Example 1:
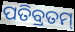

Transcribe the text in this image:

ପତିବ୍ରତମ୍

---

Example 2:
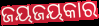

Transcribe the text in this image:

ଜୟଜୟକାର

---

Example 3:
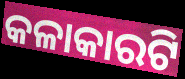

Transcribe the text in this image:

କଳାକାରଟି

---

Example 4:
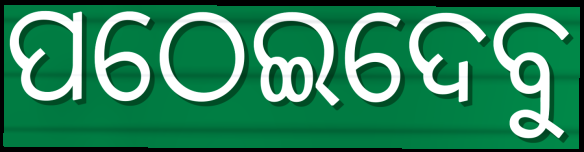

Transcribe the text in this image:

ପଠେଇଦେବୁ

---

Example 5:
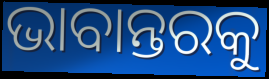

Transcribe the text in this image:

ଭାବାନ୍ତରକୁ